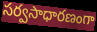
సర్వసాధారణంగా